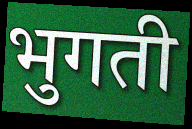
भुगती